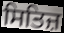
ਸਿਤਿਜ਼